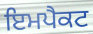
ਇਮਪੈਕਟ